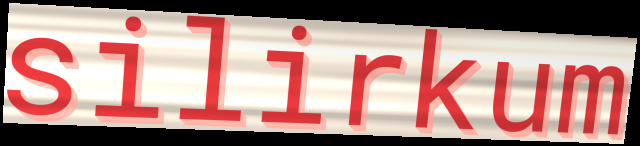
silirkum